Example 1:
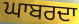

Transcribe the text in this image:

ਘਾਬਰਦਾ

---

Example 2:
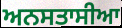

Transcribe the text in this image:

ਅਨਸਤਾਸੀਆ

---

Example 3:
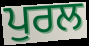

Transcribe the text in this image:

ਪੁਰਲ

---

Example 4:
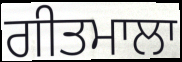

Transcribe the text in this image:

ਗੀਤਮਾਲਾ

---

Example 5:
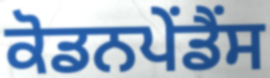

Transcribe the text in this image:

ਕੋਡਨਪੇਂਡੈਂਸ